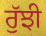
ਰੁੱਝੀ